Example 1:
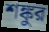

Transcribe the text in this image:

শঙ্কুর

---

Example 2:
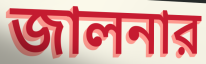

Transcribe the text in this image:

জালনার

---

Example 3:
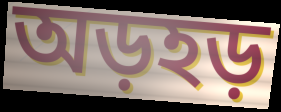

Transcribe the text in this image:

অড়হড়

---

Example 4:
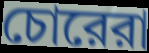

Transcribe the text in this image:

চোরেরা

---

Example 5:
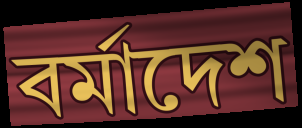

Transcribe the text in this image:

বর্মাদেশ